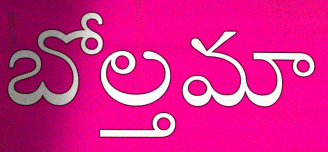
బోల్తమా